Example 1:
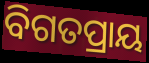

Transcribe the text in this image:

ବିଗତପ୍ରାୟ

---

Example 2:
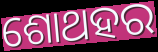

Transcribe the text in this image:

ଶୋଥହର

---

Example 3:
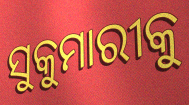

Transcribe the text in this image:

ସୁକୁମାରୀକୁ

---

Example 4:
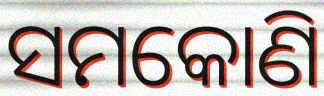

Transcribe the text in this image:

ସମକୋଣି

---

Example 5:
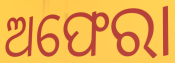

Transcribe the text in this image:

ଅଫେରା